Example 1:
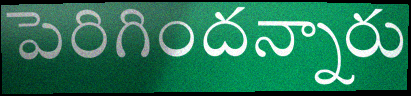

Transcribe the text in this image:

పెరిగిందన్నారు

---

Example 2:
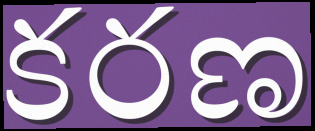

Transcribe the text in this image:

కరణ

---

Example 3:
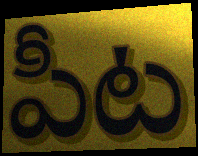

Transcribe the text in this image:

పీట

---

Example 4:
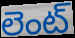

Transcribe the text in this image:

లెంట్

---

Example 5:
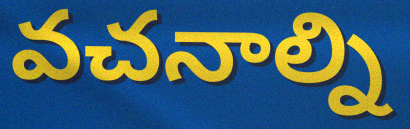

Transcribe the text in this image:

వచనాల్ని